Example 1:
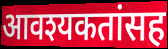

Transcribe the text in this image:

आवश्यकतांसह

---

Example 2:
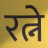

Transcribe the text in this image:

रत्ने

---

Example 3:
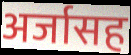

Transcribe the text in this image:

अर्जासह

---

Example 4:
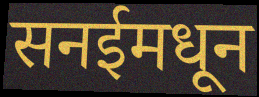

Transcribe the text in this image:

सनईमधून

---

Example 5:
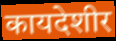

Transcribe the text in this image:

कायदेशीर